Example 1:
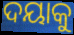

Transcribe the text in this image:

ଦୟାକୁ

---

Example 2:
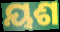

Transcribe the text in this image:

ୟଶ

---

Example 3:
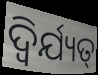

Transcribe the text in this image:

ଦ୍ୱିର୍ଯ୍ୟତ୍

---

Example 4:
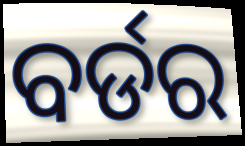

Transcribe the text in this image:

ବର୍ଡର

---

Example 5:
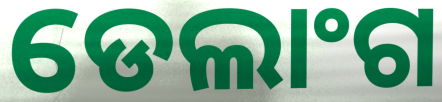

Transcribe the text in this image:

ଡେଲାଂଗ